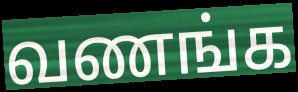
வணங்க